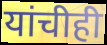
यांचीही